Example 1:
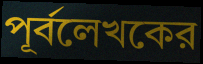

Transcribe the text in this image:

পূর্বলেখকের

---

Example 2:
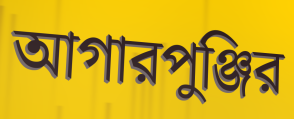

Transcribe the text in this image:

আগারপুঞ্জির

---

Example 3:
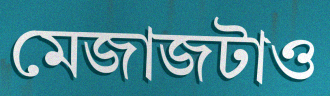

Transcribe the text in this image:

মেজাজটাও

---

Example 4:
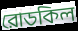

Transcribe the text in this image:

রোডকিল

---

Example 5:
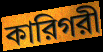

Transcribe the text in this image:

কারিগরী